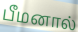
பீமனால்